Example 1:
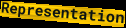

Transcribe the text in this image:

Representation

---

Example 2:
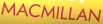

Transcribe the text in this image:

MACMILLAN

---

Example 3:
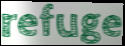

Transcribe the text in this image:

refuge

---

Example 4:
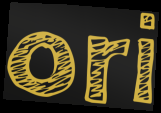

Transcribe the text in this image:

ori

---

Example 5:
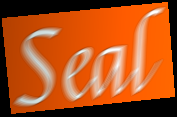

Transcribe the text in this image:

Seal